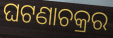
ଘଟଣାଚକ୍ରର